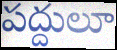
పద్దులూ